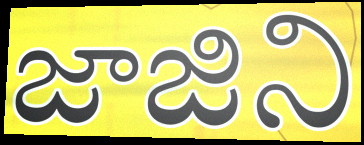
జాజిని